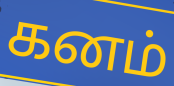
கனம்